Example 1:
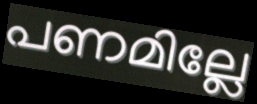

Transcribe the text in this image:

പണമില്ലേ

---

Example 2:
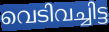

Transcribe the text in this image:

വെടിവച്ചിട്ട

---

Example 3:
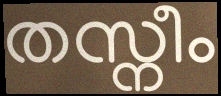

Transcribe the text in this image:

തസ്നീം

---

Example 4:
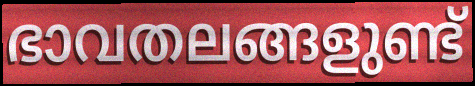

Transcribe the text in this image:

ഭാവതലങ്ങളുണ്ട്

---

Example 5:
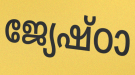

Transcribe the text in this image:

ജ്യേഷ്ഠാ